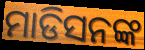
ମାଡିସନଙ୍କ